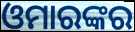
ଓମାରଙ୍କର